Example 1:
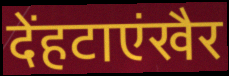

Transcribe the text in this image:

देंहटाएंखैर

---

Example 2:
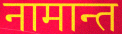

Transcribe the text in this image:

नामान्त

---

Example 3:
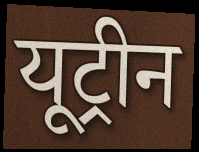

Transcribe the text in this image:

यूट्रीन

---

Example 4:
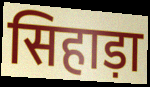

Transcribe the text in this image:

सिहाड़ा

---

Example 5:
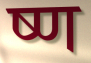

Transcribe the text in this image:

ष्ण